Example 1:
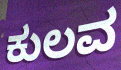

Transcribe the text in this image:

ಕುಲವ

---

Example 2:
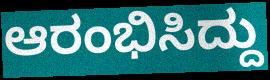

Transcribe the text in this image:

ಆರಂಭಿಸಿದ್ದು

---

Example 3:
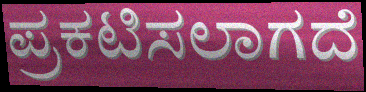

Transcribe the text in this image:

ಪ್ರಕಟಿಸಲಾಗದೆ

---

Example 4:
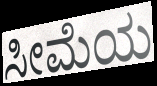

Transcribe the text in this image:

ಸೀಮೆಯ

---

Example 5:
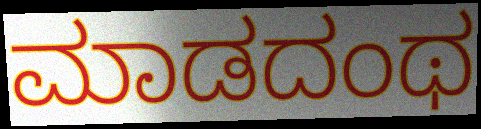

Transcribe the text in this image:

ಮಾಡದಂಥ